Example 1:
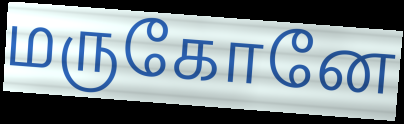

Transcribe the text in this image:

மருகோனே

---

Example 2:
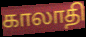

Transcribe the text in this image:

காலாதி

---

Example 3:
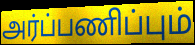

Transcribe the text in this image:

அர்ப்பணிப்பும்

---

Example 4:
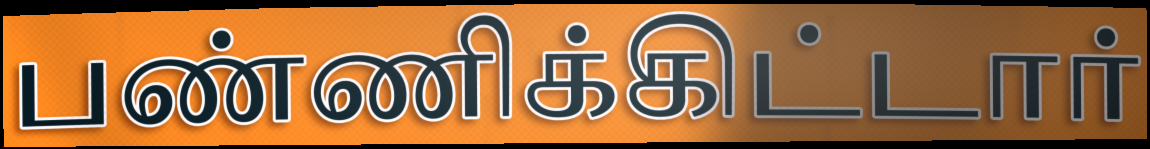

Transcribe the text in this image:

பண்ணிக்கிட்டார்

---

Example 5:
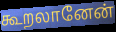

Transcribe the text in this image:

கூறலானேன்